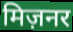
मिज़नर